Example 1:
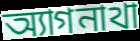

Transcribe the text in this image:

অ্যাগনাথা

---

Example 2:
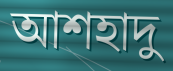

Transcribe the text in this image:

আশহাদু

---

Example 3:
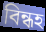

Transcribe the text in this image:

বিন্ধহ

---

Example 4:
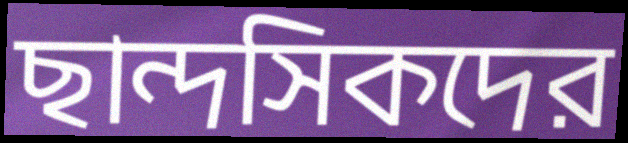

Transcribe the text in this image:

ছান্দসিকদের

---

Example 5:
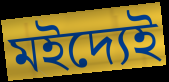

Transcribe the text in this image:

মইদ্যেই